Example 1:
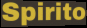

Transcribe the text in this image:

Spirito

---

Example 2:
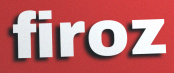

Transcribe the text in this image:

firoz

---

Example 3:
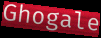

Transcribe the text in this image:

Ghogale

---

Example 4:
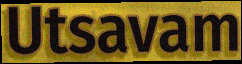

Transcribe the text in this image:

Utsavam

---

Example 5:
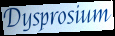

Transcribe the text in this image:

Dysprosium